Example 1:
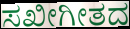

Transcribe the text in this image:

ಸಖೀಗೀತದ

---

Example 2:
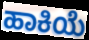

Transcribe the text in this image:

ಹಾಕಿಯೆ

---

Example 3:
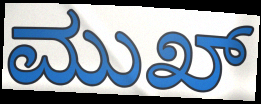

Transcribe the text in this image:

ಮುಖ್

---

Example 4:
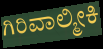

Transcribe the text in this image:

ಗಿರಿವಾಲ್ಮೀಕಿ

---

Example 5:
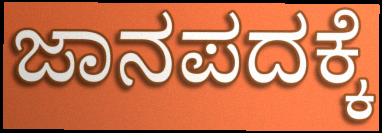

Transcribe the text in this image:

ಜಾನಪದಕ್ಕೆ